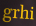
grhi